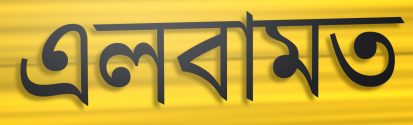
এলবামত